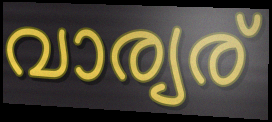
വാര്യര്